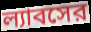
ল্যাবসের